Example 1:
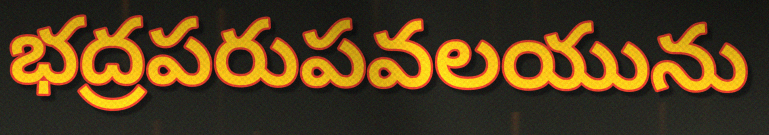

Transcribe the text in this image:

భద్రపరుపవలయును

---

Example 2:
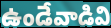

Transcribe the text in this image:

ఉండేవాడివి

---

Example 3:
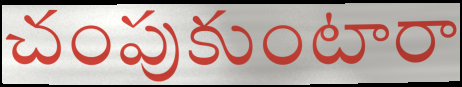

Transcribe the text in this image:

చంపుకుంటారా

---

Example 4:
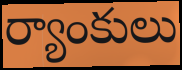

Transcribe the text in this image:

ర్యాంకులు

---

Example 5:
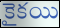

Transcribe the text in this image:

కైకయి